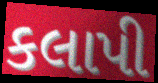
કલાપી